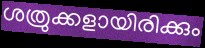
ശത്രുക്കളായിരിക്കും